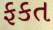
ફકત